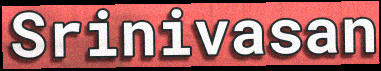
Srinivasan